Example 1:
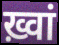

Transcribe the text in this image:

ख़्वां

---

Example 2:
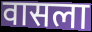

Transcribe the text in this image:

वासला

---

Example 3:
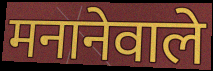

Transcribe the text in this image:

मनानेवाले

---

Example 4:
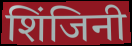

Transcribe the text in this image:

शिंजिनी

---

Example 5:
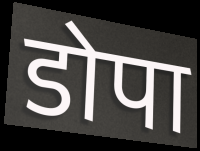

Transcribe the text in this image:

डोपा